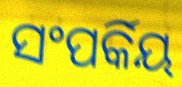
ସଂପର୍କିୟ